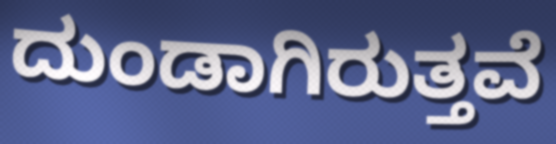
ದುಂಡಾಗಿರುತ್ತವೆ